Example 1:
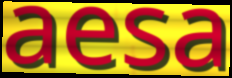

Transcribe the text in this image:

aesa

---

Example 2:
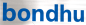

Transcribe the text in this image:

bondhu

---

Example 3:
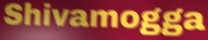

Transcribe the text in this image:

Shivamogga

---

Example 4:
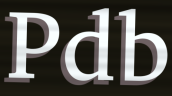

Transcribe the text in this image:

Pdb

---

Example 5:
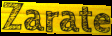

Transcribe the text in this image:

Zarate